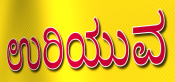
ಉರಿಯುವ